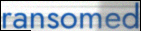
ransomed